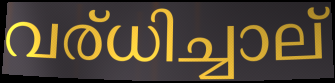
വര്ധിച്ചാല്